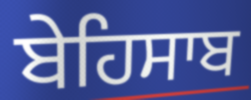
ਬੇਹਿਸਾਬ